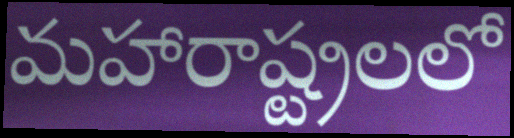
మహారాష్ట్రలలో